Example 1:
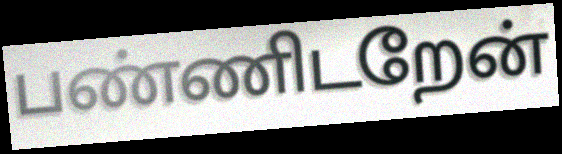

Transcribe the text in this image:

பண்ணிடறேன்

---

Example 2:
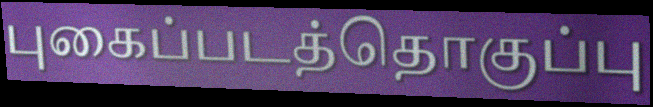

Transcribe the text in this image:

புகைப்படத்தொகுப்பு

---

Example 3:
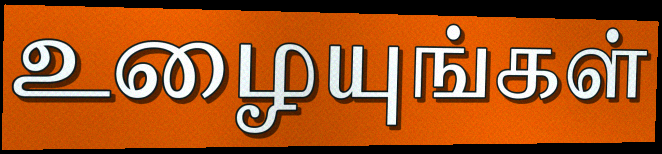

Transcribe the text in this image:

உழையுங்கள்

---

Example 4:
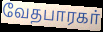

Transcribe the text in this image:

வேதபாரகர்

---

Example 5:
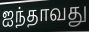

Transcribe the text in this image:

ஐந்தாவது